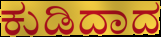
ಕುಡಿದಾದ